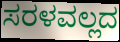
ಸರಳವಲ್ಲದ